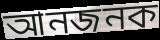
আনজনক